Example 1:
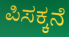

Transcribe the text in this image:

ಪಿಸಕ್ಕನೆ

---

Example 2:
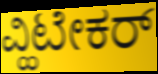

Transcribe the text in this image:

ವ್ಹಿಟೇಕರ್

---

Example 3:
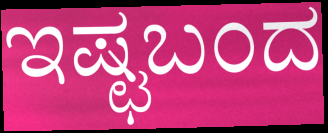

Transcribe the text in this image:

ಇಷ್ಟಬಂದ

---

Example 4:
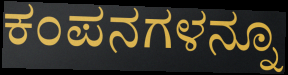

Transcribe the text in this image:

ಕಂಪನಗಳನ್ನೂ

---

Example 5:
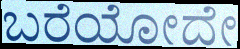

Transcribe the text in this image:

ಬರೆಯೋದೇ